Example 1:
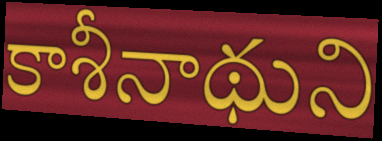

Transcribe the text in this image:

కాశీనాథుని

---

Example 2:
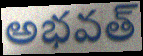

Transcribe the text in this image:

అభవత్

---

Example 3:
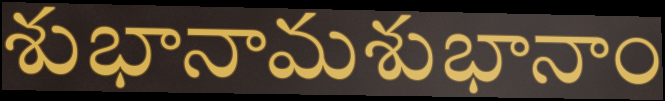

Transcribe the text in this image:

శుభానామశుభానాం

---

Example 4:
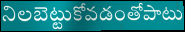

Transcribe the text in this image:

నిలబెట్టుకోవడంతోపాటు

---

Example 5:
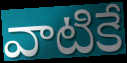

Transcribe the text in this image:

వాటికే